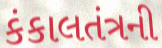
કંકાલતંત્રની